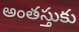
అంతస్తుకు